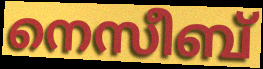
നെസീബ്